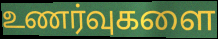
உணர்வுகளை